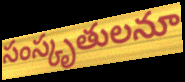
సంస్కృతులనూ